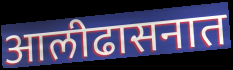
आलीढासनात